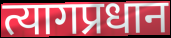
त्यागप्रधान